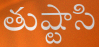
తుష్టాసి